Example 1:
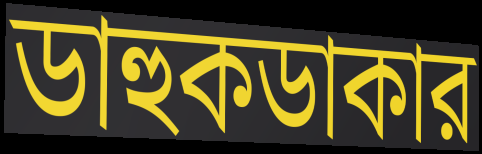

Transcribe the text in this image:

ডাহুকডাকার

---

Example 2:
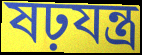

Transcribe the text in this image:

ষঢ়যন্ত্র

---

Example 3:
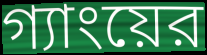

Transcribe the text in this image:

গ্যাংয়ের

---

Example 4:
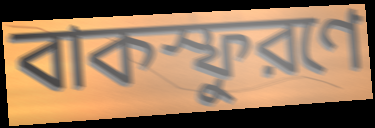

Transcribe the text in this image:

বাকস্ফুরণে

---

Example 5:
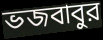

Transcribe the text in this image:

ভজবাবুর